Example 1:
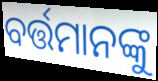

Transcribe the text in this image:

ବର୍ତ୍ତମାନଙ୍କୁ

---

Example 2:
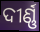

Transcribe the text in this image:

ଦୀର୍ଣ୍ଣ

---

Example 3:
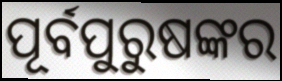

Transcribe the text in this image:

ପୂର୍ବପୁରୁଷଙ୍କର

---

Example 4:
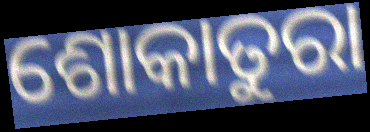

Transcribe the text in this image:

ଶୋକାତୁରା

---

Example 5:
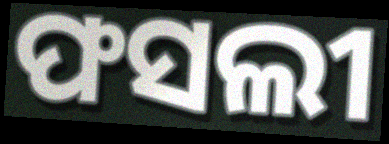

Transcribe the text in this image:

ଫସଲୀ